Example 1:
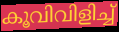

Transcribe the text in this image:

കൂവിവിളിച്ച്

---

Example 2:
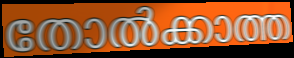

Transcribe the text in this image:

തോൽക്കാത്ത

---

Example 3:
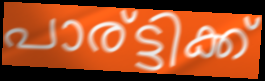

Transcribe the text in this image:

പാര്ട്ടിക്ക്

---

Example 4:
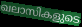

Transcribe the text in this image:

ഖലാസികളുടെ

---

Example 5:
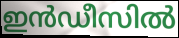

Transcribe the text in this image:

ഇൻഡീസിൽ